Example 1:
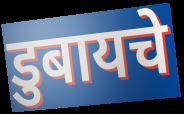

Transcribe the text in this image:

डुबायचे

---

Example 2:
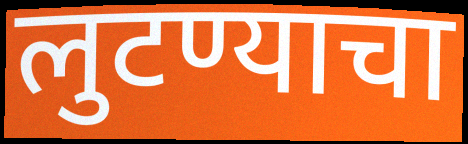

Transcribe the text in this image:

लुटण्याचा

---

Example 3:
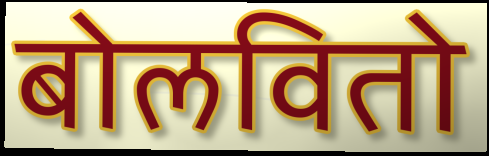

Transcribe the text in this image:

बोलवितो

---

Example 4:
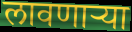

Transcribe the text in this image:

लावणाऱ्या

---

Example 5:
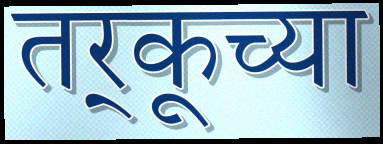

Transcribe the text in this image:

तर्कूच्या